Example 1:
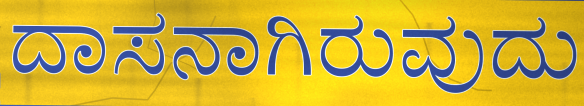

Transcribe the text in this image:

ದಾಸನಾಗಿರುವುದು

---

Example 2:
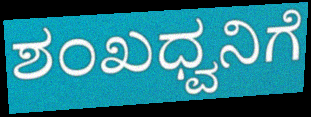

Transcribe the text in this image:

ಶಂಖಧ್ವನಿಗೆ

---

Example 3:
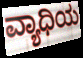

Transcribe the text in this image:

ವ್ಯಾಧಿಯ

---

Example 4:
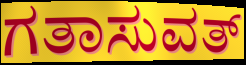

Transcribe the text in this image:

ಗತಾಸುವತ್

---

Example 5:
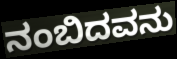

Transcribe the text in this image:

ನಂಬಿದವನು